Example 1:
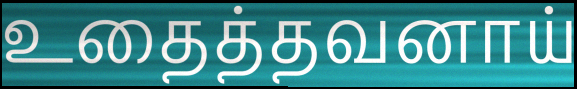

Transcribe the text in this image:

உதைத்தவனாய்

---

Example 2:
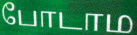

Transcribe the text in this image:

போடாம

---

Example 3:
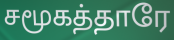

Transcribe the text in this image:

சமூகத்தாரே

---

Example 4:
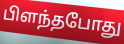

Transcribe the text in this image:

பிளந்தபோது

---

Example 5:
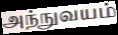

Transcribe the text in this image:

அந்நுவயம்